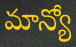
మాన్యో